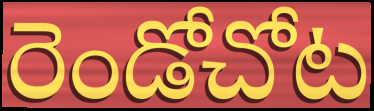
రెండోచోట